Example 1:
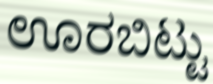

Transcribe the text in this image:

ಊರಬಿಟ್ಟು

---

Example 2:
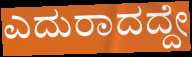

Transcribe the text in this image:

ಎದುರಾದದ್ದೇ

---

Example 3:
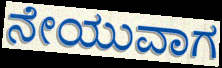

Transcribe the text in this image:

ನೇಯುವಾಗ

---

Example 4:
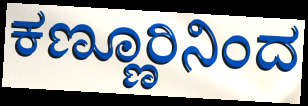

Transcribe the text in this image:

ಕಣ್ಣೂರಿನಿಂದ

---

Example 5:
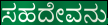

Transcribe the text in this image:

ಸಹದೇವನು